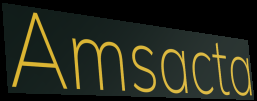
Amsacta